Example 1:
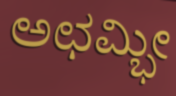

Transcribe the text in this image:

ಅಛಮ್ಭೀ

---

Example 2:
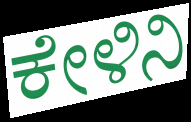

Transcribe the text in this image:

ಕೇಳಿನಿ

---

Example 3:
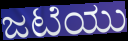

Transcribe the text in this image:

ಜಟೆಯು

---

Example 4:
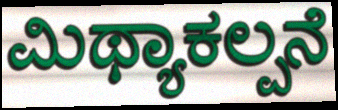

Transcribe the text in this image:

ಮಿಥ್ಯಾಕಲ್ಪನೆ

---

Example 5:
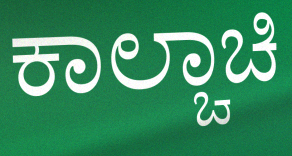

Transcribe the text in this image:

ಕಾಲ್ಚಾಚಿ